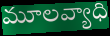
మూలవ్యాధి